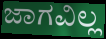
ಜಾಗವಿಲ್ಲ